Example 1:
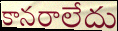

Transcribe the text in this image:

కానరాలేదు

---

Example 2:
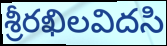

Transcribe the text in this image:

శ్రీరఖిలవిదసి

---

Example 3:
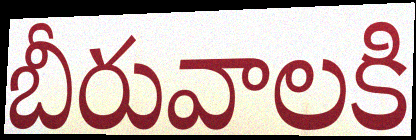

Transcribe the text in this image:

బీరువాలకి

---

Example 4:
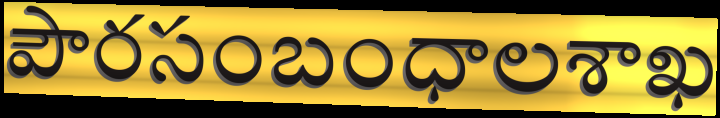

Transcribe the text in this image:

పౌరసంబంధాలశాఖ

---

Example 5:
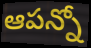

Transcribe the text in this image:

ఆపన్నో